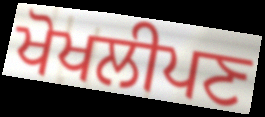
ਖੋਖਲੀਪਣ